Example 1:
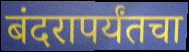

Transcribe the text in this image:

बंदरापर्यंतचा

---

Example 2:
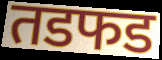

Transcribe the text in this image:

तडफड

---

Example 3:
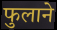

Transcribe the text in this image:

फुलाने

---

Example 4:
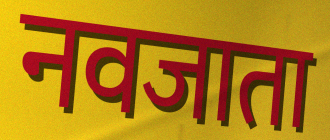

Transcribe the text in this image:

नवजाता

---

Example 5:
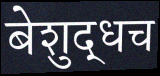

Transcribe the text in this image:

बेशुद्धच